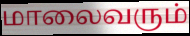
மாலைவரும்